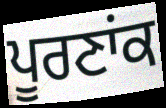
ਪੂਰਣਾਂਕ